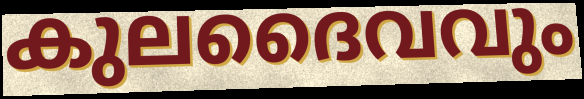
കുലദൈവവും